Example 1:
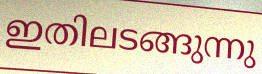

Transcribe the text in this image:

ഇതിലടങ്ങുന്നു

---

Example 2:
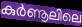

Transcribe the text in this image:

കുർണൂലിലെ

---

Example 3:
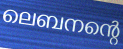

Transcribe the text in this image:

ലെബനന്റെ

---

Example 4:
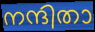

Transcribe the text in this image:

നന്ദിതാ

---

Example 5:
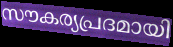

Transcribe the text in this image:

സൗകര്യപ്രദമായി